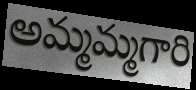
అమ్మమ్మగారి